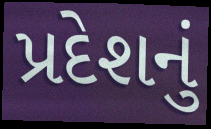
પ્રદેશનું